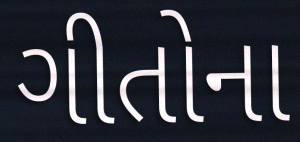
ગીતોના